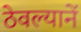
ठेवल्यानें